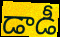
డాడీ